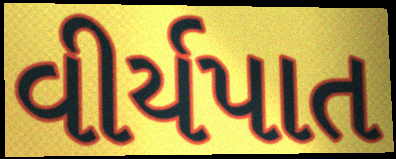
વીર્યપાત